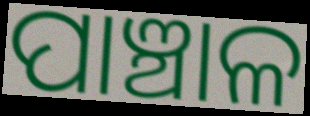
ପାଞ୍ଚାଳ